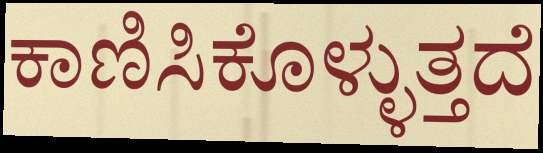
ಕಾಣಿಸಿಕೊಳ್ಳುತ್ತದೆ